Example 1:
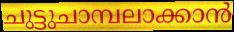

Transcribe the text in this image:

ചുട്ടുചാമ്പലാക്കാൻ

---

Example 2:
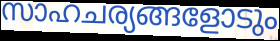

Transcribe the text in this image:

സാഹചര്യങ്ങളോടും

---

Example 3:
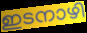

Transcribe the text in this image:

ഇടനാഴി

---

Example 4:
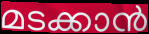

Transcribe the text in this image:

മടക്കാൻ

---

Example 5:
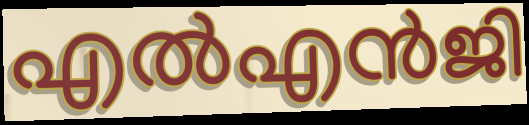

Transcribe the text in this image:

എൽഎൻജി